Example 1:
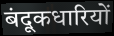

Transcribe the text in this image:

बंदूकधारियों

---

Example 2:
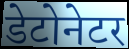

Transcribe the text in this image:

डेटोनेटर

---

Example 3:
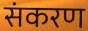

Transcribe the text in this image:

संकरण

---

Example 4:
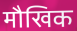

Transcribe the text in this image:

मौखिक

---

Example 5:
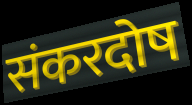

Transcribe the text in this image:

संकरदोष